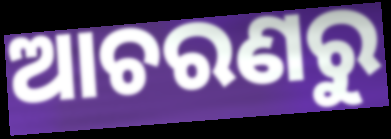
ଆଚରଣରୁ